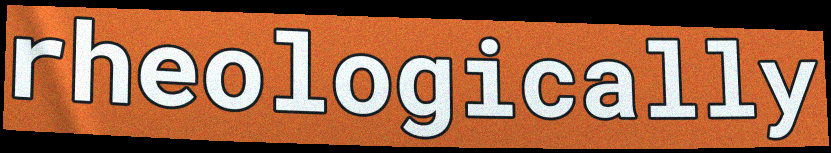
rheologically